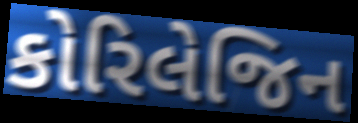
કોરિલેજિન